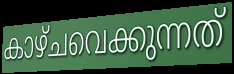
കാഴ്ചവെക്കുന്നത്